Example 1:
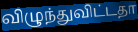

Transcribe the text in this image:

விழுந்துவிட்டதா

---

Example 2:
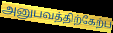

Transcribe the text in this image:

அனுபவத்திற்கேற்ப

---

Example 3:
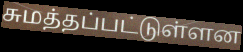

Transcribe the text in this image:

சுமத்தப்பட்டுள்ளன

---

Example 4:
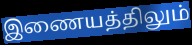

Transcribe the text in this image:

இணையத்திலும்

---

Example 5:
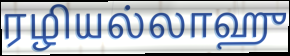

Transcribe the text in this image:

ரழியல்லாஹு